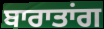
ਬਾਰਾਤਾਂਗ